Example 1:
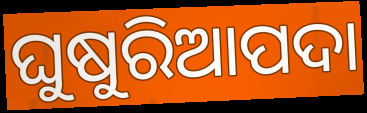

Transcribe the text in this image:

ଘୁଷୁରିଆପଦା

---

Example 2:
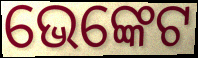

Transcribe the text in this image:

ଭେଙ୍କେଟ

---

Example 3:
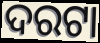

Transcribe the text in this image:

ଦରଟା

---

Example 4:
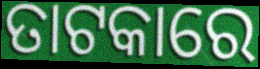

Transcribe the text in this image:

ତାଟକାରେ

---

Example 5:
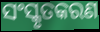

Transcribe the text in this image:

ସଂସ୍କୃତକରଣ